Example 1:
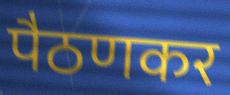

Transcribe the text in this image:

पैठणकर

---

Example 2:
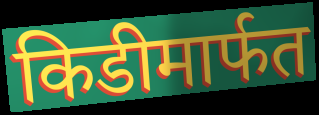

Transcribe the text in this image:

किडीमार्फत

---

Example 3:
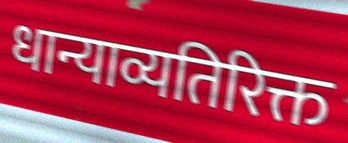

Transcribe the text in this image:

धान्याव्यतिरिक्त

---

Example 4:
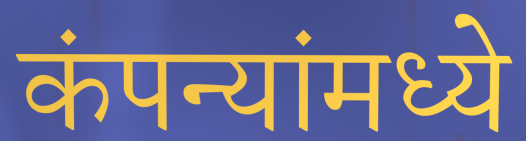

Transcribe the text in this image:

कंपन्यांमध्ये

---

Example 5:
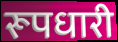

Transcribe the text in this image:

रूपधारी